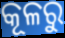
କୂଳରୁ